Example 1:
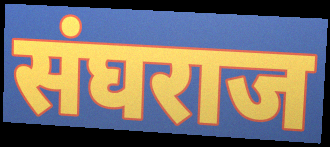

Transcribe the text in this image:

संघराज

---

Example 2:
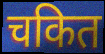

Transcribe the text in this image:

चकित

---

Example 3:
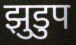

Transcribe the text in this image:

झुडुप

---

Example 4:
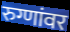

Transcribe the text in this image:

रुग्णांवर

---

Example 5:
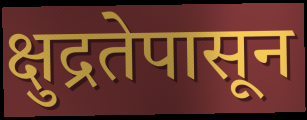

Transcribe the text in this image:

क्षुद्रतेपासून